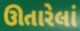
ઊતારેલાં